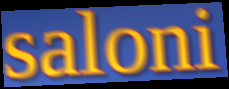
saloni